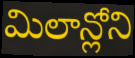
మిలాన్లోని